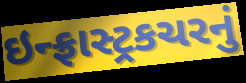
ઇન્ફ્રાસ્ટ્રકચરનું